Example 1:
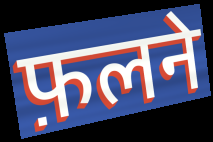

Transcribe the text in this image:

फ़लने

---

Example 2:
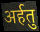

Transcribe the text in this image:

अर्हतु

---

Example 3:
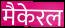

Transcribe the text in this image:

मैकेरल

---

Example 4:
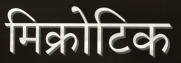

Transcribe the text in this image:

मिक्रोटिक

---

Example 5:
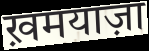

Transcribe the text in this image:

ख़मयाज़ा